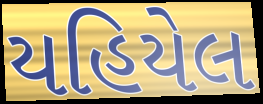
યહિયેલ